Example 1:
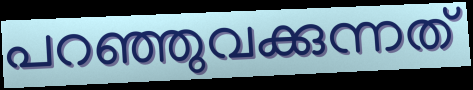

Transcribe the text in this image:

പറഞ്ഞുവക്കുന്നത്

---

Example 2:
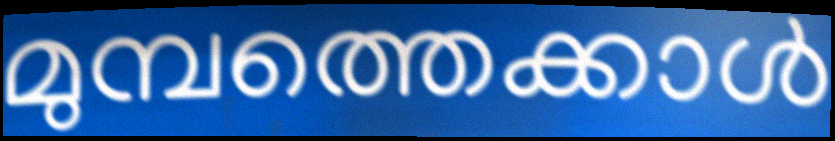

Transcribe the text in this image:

മുമ്പത്തെക്കാൾ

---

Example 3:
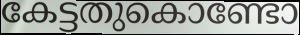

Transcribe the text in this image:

കേട്ടതുകൊണ്ടോ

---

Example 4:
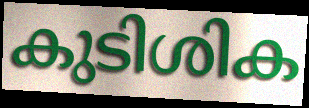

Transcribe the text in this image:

കുടിശിക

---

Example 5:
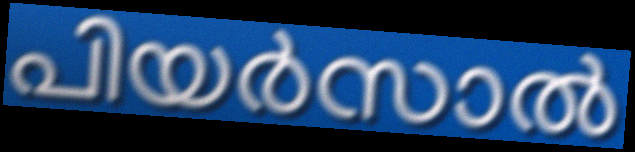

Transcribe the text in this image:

പിയർസാൽ